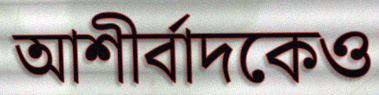
আশীর্বাদকেও